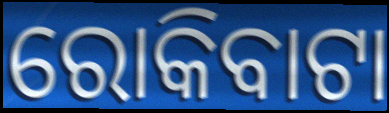
ରୋକିବାଟା